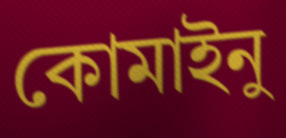
কোমাইনু